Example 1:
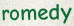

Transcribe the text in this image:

romedy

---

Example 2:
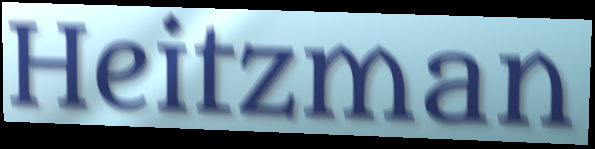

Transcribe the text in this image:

Heitzman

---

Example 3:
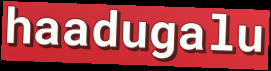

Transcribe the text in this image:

haadugalu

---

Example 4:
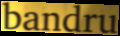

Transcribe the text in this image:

bandru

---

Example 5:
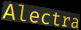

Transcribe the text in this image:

Alectra